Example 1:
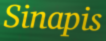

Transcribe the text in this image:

Sinapis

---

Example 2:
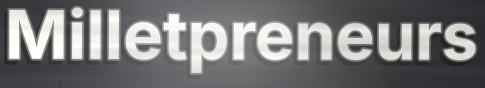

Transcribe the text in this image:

Milletpreneurs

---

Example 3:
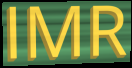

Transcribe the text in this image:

IMR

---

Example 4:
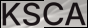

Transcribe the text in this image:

KSCA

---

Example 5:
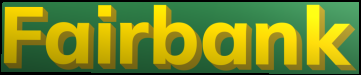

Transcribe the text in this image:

Fairbank